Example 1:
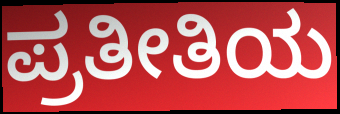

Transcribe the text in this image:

ಪ್ರತೀತಿಯ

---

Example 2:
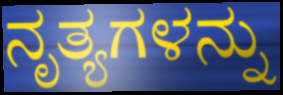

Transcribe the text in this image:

ನೃತ್ಯಗಳನ್ನು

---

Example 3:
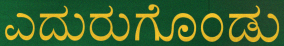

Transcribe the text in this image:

ಎದುರುಗೊಂಡು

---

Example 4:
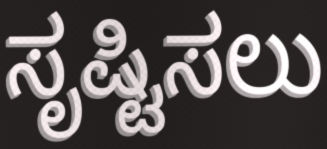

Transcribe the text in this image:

ಸೃಷ್ಟಿಸಲು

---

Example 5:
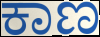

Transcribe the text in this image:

ಕಾಣ